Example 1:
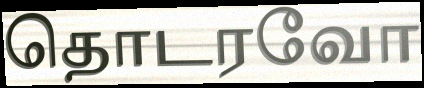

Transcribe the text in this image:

தொடரவோ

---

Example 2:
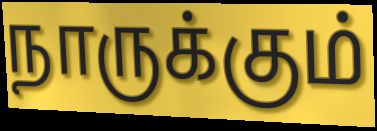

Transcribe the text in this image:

நாருக்கும்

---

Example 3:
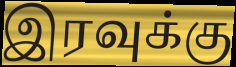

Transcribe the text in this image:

இரவுக்கு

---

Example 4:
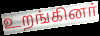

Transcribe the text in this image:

உறங்கினர்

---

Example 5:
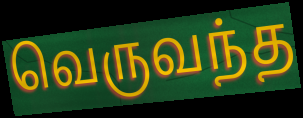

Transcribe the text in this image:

வெருவந்த